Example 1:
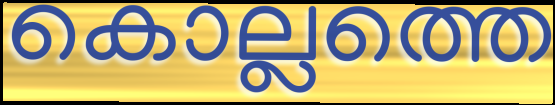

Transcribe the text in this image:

കൊല്ലത്തെ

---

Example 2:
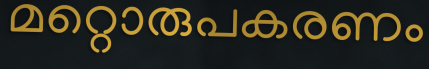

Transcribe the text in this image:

മറ്റൊരുപകരണം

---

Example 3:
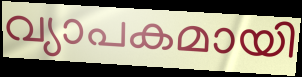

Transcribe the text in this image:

വ്യാപകമായി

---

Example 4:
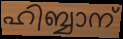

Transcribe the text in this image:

ഹിബ്ബാന്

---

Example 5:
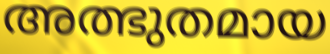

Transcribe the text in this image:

അത്ഭുതമായ